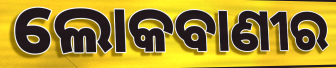
ଲୋକବାଣୀର